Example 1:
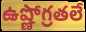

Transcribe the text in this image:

ఉష్ణోగ్రతలే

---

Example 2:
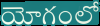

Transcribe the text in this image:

యోగంలో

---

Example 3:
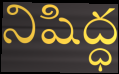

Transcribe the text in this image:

నిషిద్ధ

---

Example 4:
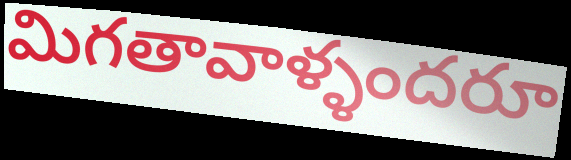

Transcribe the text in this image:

మిగతావాళ్ళందరూ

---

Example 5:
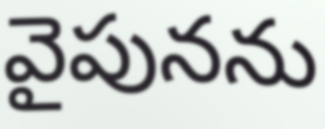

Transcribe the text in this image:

వైపునను